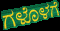
ಗಳೊಳಗೆ